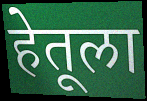
हेतूला